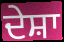
ਦੇਸ਼ਾ